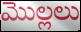
మొల్లలు